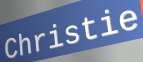
Christie